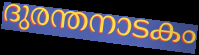
ദുരന്തനാടകം